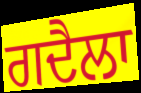
ਗਦੈਲਾ